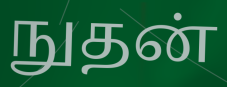
நுதன்